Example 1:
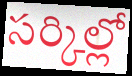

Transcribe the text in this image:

సర్కిల్లో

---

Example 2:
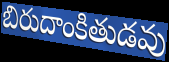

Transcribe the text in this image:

బిరుదాంకితుడవు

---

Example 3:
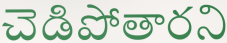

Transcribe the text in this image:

చెడిపోతారని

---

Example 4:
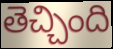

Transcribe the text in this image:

తెచ్చింది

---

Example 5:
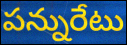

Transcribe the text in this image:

పన్నురేటు